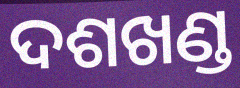
ଦଶଖଣ୍ଡ